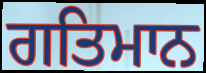
ਗਤਿਮਾਨ